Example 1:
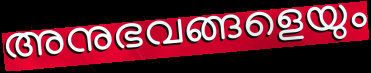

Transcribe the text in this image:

അനുഭവങ്ങളെയും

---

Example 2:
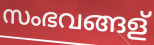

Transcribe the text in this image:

സംഭവങ്ങള്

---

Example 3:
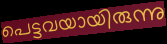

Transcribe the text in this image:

പെട്ടവയായിരുന്നു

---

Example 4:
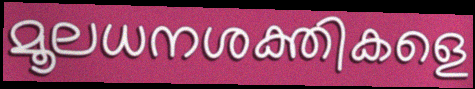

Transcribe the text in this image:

മൂലധനശക്തികളെ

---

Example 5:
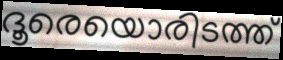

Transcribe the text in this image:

ദൂരെയൊരിടത്ത്